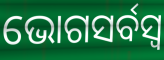
ଭୋଗସର୍ବସ୍ୱ